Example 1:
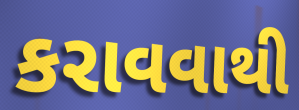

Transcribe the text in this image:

કરાવવાથી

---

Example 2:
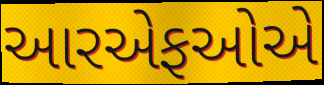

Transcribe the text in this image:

આરએફઓએ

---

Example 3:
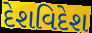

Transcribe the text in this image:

દેશવિદેશ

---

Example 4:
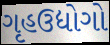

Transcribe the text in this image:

ગૃહઉદ્યોગો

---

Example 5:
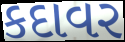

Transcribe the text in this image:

કદાવર